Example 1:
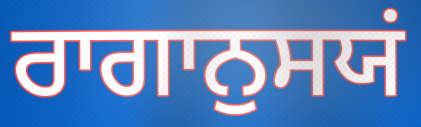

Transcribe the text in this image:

ਰਾਗਾਨੁਸਯਂ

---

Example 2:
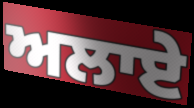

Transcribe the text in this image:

ਅਲਾਏ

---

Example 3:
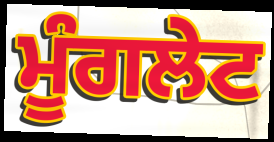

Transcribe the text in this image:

ਮੂੰਗਲੇਟ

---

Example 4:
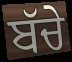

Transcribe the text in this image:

ਬੱਚੇ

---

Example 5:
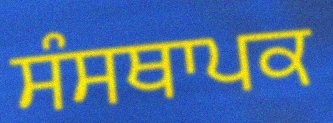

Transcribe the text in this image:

ਸੰਸਥਾਪਕ